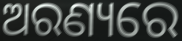
ଅରଣ୍ୟରେ